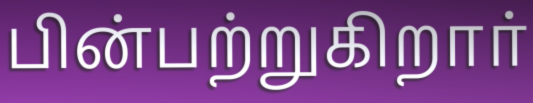
பின்பற்றுகிறார்